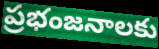
ప్రభంజనాలకు